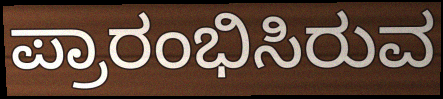
ಪ್ರಾರಂಭಿಸಿರುವ